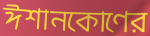
ঈশানকোণের